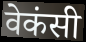
वेकंसी